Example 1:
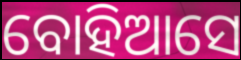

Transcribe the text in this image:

ବୋହିଆସେ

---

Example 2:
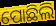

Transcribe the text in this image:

ପୋଛିଲି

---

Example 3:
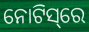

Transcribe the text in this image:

ନୋଟିସ୍‌ରେ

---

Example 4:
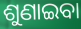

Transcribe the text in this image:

ଶୁଣାଇବା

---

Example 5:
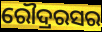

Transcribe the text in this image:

ରୌଦ୍ରରସର